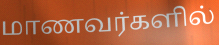
மாணவர்களில்